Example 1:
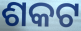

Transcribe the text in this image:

ଶକଟ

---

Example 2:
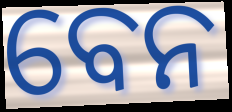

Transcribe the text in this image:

ବେନ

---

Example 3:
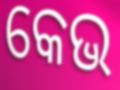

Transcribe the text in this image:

କେଭ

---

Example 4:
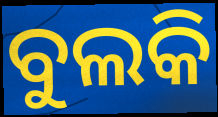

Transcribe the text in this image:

ବୁଲକି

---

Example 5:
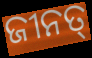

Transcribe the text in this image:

ଜୀନତ୍